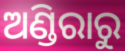
ଅଣ୍ଡିରାରୁ